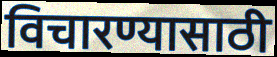
विचारण्यासाठी